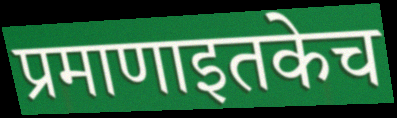
प्रमाणाइतकेच